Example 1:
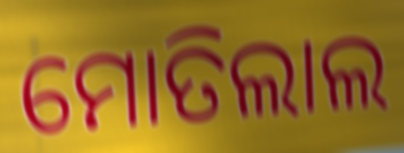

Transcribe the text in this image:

ମୋତିଲାଲ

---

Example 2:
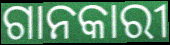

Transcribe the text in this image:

ଗାନକାରୀ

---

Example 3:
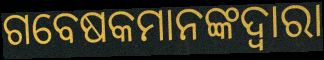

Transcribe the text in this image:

ଗବେଷକମାନଙ୍କଦ୍ୱାରା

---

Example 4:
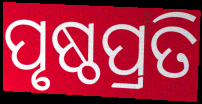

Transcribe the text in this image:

ପୃଷ୍ଠପ୍ରତି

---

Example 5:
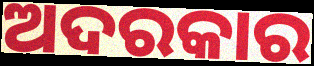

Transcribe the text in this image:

ଅଦରକାର